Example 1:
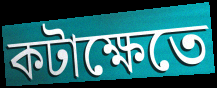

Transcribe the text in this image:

কটাক্ষেতে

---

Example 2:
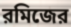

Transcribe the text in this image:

রমিজের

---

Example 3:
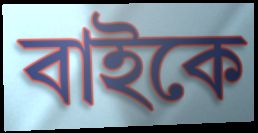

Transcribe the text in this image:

বাইকে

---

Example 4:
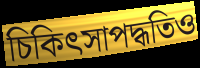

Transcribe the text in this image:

চিকিৎসাপদ্ধতিও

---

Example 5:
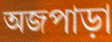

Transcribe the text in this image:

অজপাড়া